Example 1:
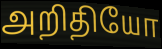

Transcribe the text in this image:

அறிதியோ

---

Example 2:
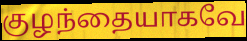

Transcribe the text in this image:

குழந்தையாகவே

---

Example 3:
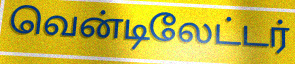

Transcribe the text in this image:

வென்டிலேட்டர்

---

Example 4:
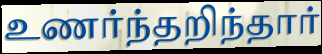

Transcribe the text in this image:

உணர்ந்தறிந்தார்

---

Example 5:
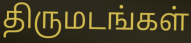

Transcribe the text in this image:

திருமடங்கள்